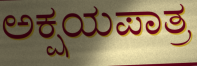
ಅಕ್ಷಯಪಾತ್ರ